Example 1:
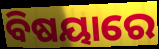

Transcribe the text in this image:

ବିଷୟାରେ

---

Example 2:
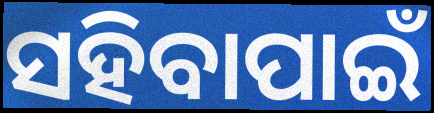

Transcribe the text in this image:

ସହିବାପାଇଁ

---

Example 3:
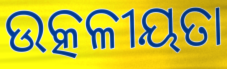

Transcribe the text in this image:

ଉତ୍କଳୀୟତା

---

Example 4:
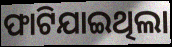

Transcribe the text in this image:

ଫାଟିଯାଇଥିଲା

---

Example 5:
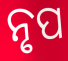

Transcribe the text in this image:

ନୃପ